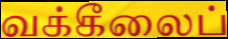
வக்கீலைப்